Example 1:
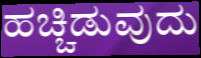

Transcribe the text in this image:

ಹಚ್ಚಿಡುವುದು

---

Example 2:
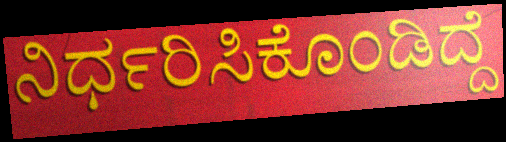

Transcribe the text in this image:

ನಿರ್ಧರಿಸಿಕೊಂಡಿದ್ದೆ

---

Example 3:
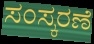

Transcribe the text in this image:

ಸಂಸ್ಕರಣೆ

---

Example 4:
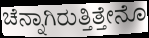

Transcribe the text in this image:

ಚೆನ್ನಾಗಿರುತ್ತಿತ್ತೇನೊ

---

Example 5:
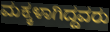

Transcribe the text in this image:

ಮಕ್ಕಳಾಗಿದ್ದವರು